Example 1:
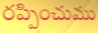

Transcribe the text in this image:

రప్పించుము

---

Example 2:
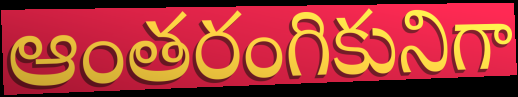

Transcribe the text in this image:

ఆంతరంగికునిగా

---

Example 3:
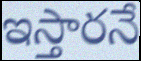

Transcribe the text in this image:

ఇస్తారనే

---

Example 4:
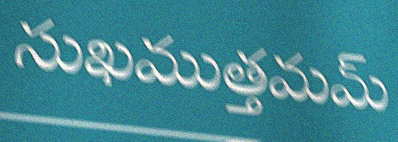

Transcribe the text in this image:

సుఖముత్తమమ్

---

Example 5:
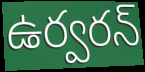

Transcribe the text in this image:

ఉర్వరన్